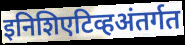
इनिशिएटिव्हअंतर्गत